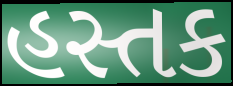
હસ્તક